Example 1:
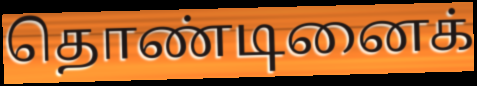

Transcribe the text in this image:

தொண்டினைக்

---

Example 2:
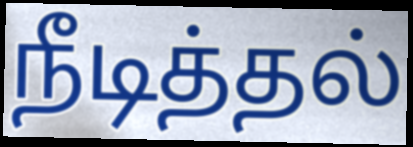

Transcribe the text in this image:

நீடித்தல்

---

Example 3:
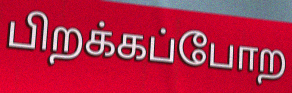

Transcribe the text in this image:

பிறக்கப்போற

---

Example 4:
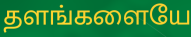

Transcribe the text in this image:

தளங்களையே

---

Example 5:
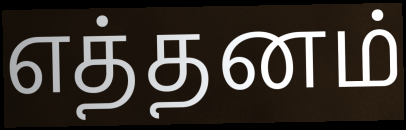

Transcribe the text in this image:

எத்தனம்